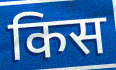
किस